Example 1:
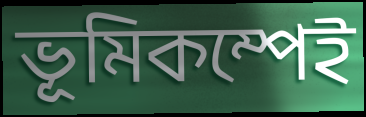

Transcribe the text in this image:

ভূমিকম্পেই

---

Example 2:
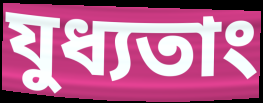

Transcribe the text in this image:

যুধ্যতাং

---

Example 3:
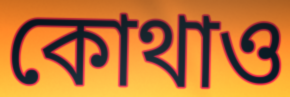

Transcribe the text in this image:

কোথাও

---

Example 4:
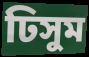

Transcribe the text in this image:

ঢিসুম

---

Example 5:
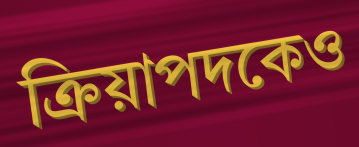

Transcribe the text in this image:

ক্রিয়াপদকেও